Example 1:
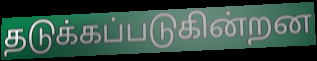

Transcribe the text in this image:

தடுக்கப்படுகின்றன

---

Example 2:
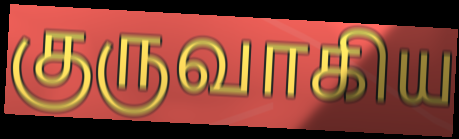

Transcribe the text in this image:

குருவாகிய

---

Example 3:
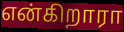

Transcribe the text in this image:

என்கிறாரா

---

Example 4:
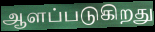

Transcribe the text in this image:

ஆளப்படுகிறது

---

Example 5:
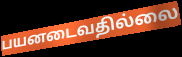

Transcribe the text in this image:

பயனடைவதில்லை